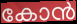
കോൻ